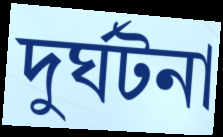
দুৰ্ঘটনা